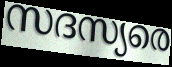
സദസ്യരെ